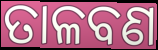
ତାଳବଣ